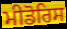
ਮੀਡੋਰਿਸ